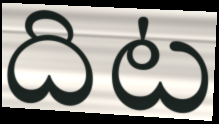
దిట